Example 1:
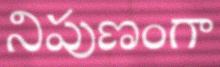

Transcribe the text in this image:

నిపుణంగా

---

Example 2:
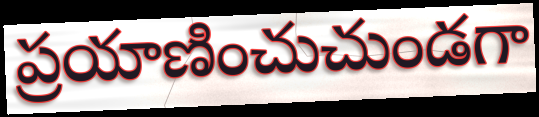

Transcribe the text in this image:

ప్రయాణించుచుండగా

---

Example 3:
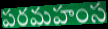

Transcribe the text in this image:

పరమహంస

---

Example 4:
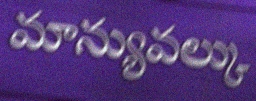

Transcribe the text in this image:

మాన్యువల్కు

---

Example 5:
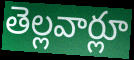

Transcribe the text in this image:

తెల్లవార్లూ